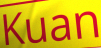
Kuan